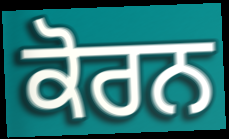
ਕੋਰਨ